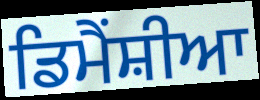
ਡਿਮੈਂਸ਼ੀਆ